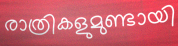
രാത്രികളുമുണ്ടായി